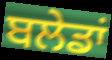
ਬਲੇਡਾਂ